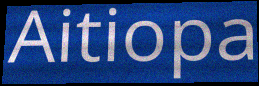
Aitiopa